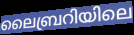
ലൈബ്രറിയിലെ